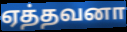
ஏத்தவனா